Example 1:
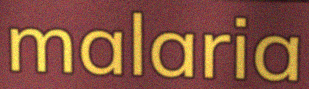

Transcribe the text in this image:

malaria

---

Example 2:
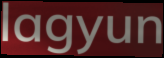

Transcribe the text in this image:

lagyun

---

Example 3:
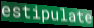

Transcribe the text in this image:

estipulate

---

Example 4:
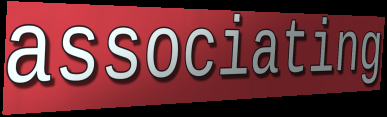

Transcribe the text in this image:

associating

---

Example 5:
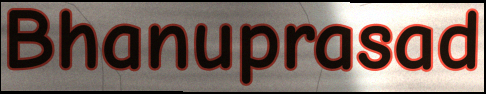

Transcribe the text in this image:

Bhanuprasad